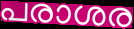
പരാശര